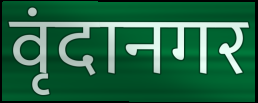
वृंदानगर